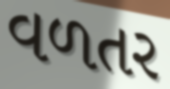
વળતર